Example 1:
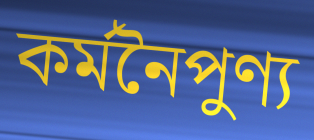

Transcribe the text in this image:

কর্মনৈপুণ্য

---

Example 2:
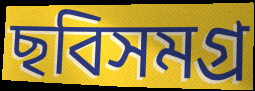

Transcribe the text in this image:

ছবিসমগ্র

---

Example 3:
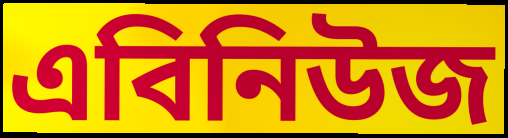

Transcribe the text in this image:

এবিনিউজ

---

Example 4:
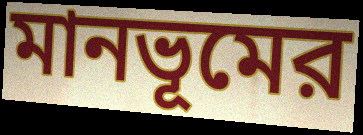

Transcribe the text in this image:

মানভূমের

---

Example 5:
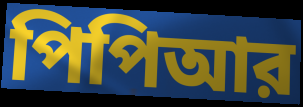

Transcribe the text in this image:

পিপিআর